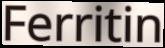
Ferritin